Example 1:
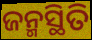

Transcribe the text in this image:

ଜନ୍ମସ୍ଥିତି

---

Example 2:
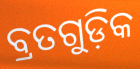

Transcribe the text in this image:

ବ୍ରତଗୁଡ଼ିକ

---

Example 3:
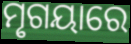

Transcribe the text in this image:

ମୃଗୟାରେ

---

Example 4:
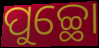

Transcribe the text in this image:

ପୁଚ୍ଛୋ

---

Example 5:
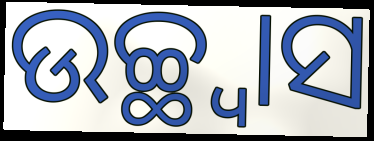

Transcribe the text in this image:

ଉଚ୍ଛ୍ୱାସ